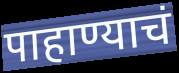
पाहाण्याचं